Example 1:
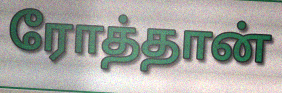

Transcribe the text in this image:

ரோத்தான்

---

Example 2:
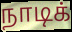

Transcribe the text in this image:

நாடிக்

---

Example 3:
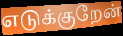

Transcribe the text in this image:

எடுக்குறேன்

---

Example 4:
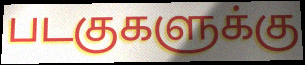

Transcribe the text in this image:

படகுகளுக்கு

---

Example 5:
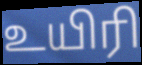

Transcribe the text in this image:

உயிரி